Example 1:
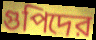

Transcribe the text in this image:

গুপিদের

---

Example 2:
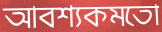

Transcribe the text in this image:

আবশ্যকমতো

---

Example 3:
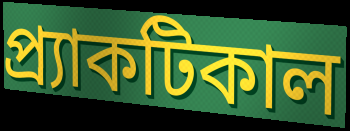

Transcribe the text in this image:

প্র্যাকটিকাল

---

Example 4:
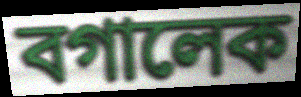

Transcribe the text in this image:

বগালেক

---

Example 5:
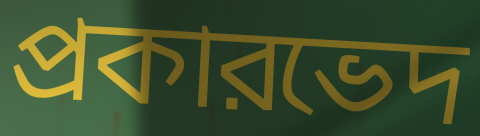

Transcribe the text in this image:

প্রকারভেদ